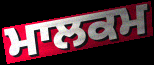
ਮਾਲਕਮ